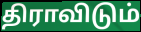
திராவிடும்